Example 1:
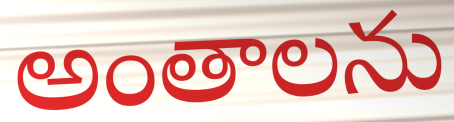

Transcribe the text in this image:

అంతాలను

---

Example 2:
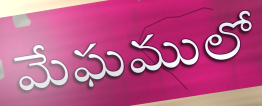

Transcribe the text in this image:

మేఘములో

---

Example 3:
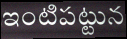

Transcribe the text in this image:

ఇంటిపట్టున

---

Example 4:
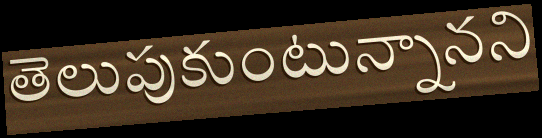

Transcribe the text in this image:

తెలుపుకుంటున్నానని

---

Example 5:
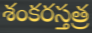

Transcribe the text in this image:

శంకరస్తత్ర